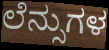
ಲೆನ್ಸುಗಳ